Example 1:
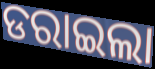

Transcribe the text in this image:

ଡରାଇଲା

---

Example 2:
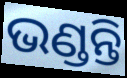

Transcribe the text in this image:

ଭଣ୍ଡନ୍ତି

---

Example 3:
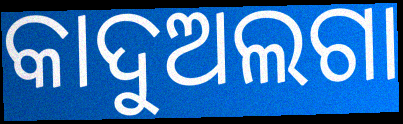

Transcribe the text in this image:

କାଦୁଅଲଗା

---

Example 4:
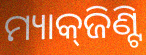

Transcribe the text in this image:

ମ୍ୟାକ୍‌ଜିଣ୍ଟି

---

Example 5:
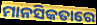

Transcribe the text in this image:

ମାନସିକତାରେ